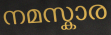
നമസ്കാര